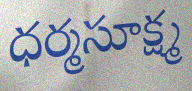
ధర్మసూక్ష్మ